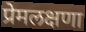
प्रेमलक्षणा